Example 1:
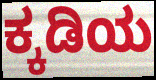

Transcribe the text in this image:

ಕ್ಕಡಿಯ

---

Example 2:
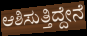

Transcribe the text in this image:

ಆಶಿಸುತ್ತಿದ್ದೇನೆ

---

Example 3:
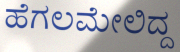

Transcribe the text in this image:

ಹೆಗಲಮೇಲಿದ್ದ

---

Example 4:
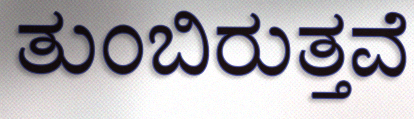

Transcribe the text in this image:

ತುಂಬಿರುತ್ತವೆ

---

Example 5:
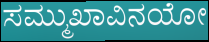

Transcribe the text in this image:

ಸಮ್ಮುಖಾವಿನಯೋ